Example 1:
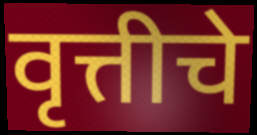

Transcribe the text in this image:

वृत्तीचे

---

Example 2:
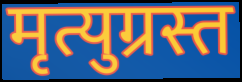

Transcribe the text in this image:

मृत्युग्रस्त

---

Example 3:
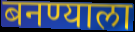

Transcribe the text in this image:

बनण्याला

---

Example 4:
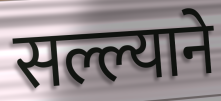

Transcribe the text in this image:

सल्ल्याने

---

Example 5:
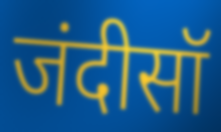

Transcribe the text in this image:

जंदीसॉ